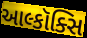
આલ્કૉક્સિ